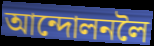
আন্দোলনলৈ